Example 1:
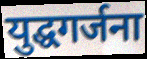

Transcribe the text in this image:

युद्धगर्जना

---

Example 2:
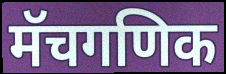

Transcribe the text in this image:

मॅचगणिक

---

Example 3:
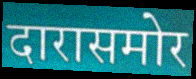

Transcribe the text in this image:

दारासमोर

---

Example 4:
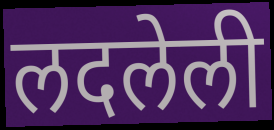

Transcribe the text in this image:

लदलेली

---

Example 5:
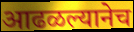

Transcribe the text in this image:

आढळल्यानेच